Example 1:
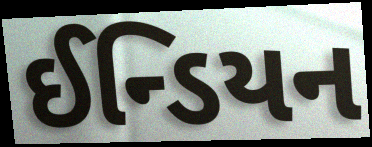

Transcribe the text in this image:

ઈન્ડિયન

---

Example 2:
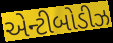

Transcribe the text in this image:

એન્ટીબોડીઝ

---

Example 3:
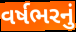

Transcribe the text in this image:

વર્ષભરનું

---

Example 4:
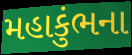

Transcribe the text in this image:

મહાકુંભના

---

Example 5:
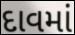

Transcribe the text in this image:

દાવમાં